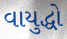
વાયુદ્ધો